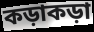
কড়াকড়া